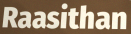
Raasithan